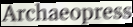
Archaeopress